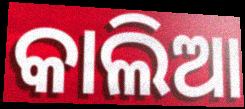
କାଲିଆ